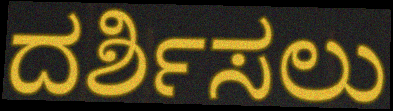
ದರ್ಶಿಸಲು